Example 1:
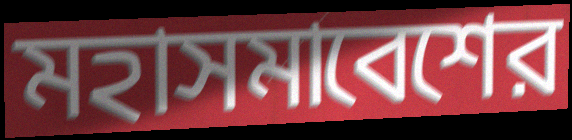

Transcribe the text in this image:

মহাসমাবেশের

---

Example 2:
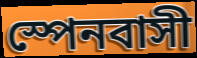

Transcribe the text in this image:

স্পেনবাসী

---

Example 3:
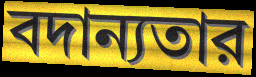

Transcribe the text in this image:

বদান্যতার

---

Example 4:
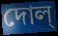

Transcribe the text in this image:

দোল্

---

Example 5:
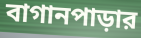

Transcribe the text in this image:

বাগানপাড়ার